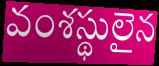
వంశస్థులైన